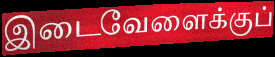
இடைவேளைக்குப்